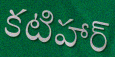
కటిహార్